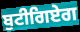
ਬੁਟੀਗਿਏਗ